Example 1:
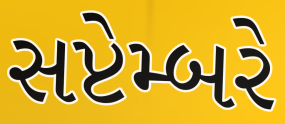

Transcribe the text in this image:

સપ્ટેમ્બરે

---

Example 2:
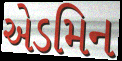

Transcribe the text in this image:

એડમિન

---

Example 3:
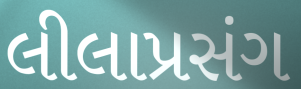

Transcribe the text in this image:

લીલાપ્રસંગ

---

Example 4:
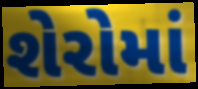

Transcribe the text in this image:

શેરોમાં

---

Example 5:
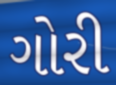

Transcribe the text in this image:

ગોરી